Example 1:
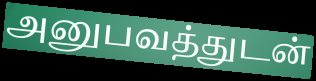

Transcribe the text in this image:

அனுபவத்துடன்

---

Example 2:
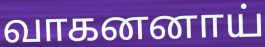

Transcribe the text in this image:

வாகனனாய்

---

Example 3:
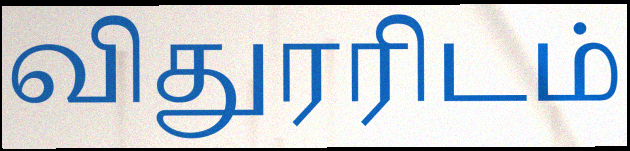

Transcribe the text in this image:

விதுரரிடம்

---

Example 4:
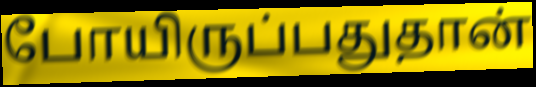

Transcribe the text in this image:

போயிருப்பதுதான்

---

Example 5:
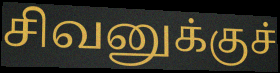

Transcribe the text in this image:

சிவனுக்குச்